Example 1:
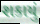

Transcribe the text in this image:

શકાયું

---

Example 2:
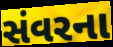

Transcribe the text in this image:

સંવરના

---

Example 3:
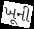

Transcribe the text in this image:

ખૂની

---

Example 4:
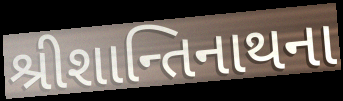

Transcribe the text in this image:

શ્રીશાન્તિનાથના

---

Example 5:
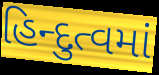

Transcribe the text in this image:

હિન્દુત્વમાં